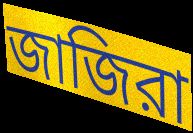
জাজিরা